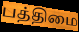
பத்திமை